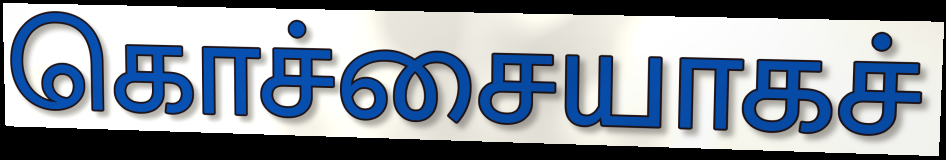
கொச்சையாகச்